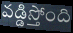
వడ్డిస్తోంది